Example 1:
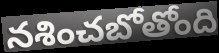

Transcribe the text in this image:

నశించబోతోంది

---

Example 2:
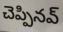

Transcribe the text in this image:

చెప్పినవ్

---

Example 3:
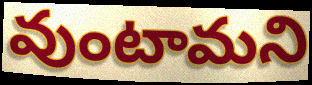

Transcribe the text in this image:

వుంటామని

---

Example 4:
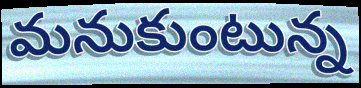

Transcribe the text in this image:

మనుకుంటున్న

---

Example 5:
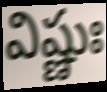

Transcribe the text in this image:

విష్ణుః